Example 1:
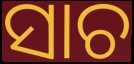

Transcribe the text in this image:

ସାଚ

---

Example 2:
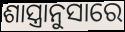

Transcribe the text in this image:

ଶାସ୍ତ୍ରାନୁସାରେ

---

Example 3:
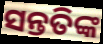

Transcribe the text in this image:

ସନ୍ତତିଙ୍କ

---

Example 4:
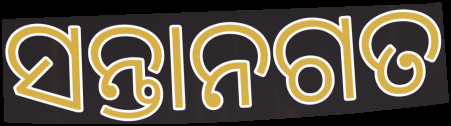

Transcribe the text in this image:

ସନ୍ତାନଗତ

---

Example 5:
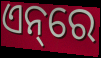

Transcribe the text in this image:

ଏନ୍‌ରେ